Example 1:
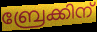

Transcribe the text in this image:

ബ്രേക്കിന്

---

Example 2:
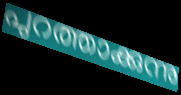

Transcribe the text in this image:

പുറത്താക്കുന്നു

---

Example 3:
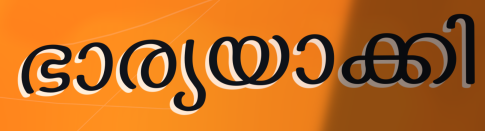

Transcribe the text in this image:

ഭാര്യയാക്കി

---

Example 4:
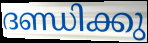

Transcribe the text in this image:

ദണ്ഡിക്കു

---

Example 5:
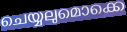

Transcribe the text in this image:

ചെയ്യലുമൊക്കെ